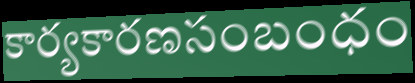
కార్యకారణసంబంధం